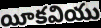
యీకవియు